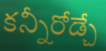
కన్నీరోడ్చే